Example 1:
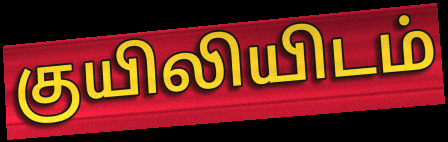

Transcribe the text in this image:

குயிலியிடம்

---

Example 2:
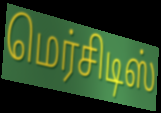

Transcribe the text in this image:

மெர்சிடிஸ்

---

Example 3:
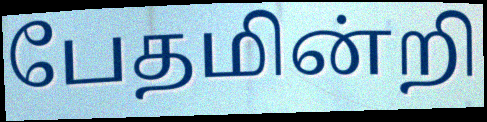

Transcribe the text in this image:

பேதமின்றி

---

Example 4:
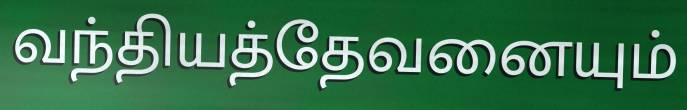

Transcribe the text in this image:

வந்தியத்தேவனையும்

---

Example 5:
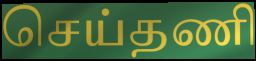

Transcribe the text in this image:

செய்தணி